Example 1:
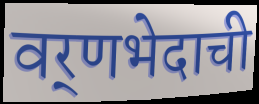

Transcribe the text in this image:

वर्णभेदाची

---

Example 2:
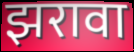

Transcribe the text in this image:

झरावा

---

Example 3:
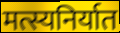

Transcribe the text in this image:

मत्स्यनिर्यात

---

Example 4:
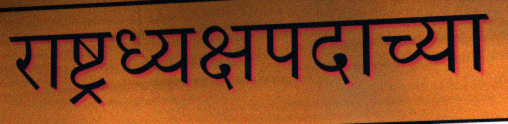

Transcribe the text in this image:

राष्ट्रध्यक्षपदाच्या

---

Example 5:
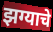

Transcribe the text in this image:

झग्याचे